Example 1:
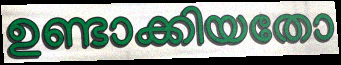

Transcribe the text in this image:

ഉണ്ടാക്കിയതോ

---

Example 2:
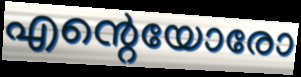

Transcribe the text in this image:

എന്റെയോരോ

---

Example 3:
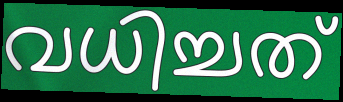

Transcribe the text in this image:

വധിച്ചത്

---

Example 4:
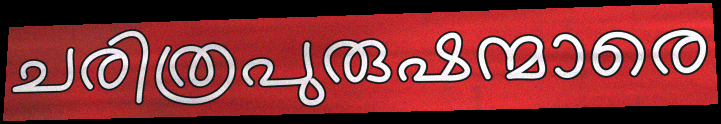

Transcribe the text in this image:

ചരിത്രപുരുഷന്മാരെ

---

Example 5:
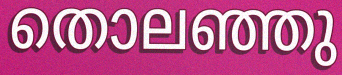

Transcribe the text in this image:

തൊലഞ്ഞു